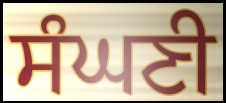
ਸੰਘਣੀ